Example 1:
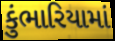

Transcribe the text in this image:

કુંભારિયામાં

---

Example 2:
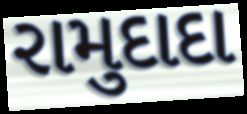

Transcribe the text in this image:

રામુદાદા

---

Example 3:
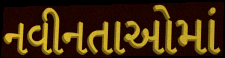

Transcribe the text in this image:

નવીનતાઓમાં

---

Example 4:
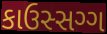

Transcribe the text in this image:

કાઉસ્સગ્ગ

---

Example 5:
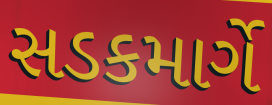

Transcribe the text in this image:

સડકમાર્ગે